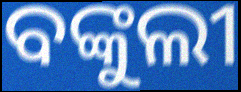
ବଙ୍କୁଲୀ